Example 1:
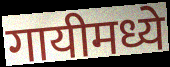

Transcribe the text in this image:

गायीमध्ये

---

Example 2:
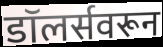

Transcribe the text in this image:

डॉलर्सवरून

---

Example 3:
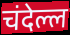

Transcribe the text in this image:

चंदेल्ल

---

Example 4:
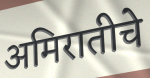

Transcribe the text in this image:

अमिरातीचे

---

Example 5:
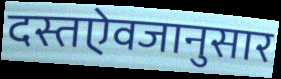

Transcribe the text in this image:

दस्तऐवजानुसार